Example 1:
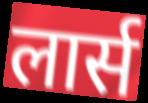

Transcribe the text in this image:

लार्स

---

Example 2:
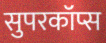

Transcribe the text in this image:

सुपरकॉप्स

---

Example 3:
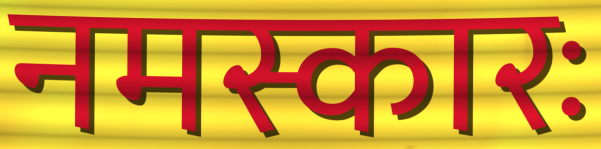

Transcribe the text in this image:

नमस्कारः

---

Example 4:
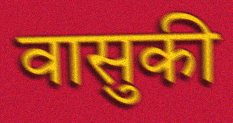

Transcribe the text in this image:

वासुकी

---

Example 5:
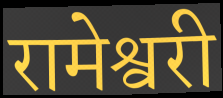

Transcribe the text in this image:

रामेश्वरी